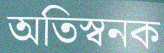
অতিস্বনক